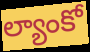
ల్యాంకో